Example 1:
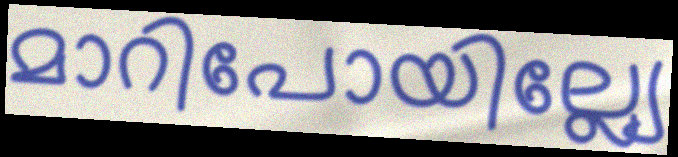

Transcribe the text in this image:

മാറിപോയില്ല്യേ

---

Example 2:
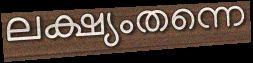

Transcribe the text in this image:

ലക്ഷ്യംതന്നെ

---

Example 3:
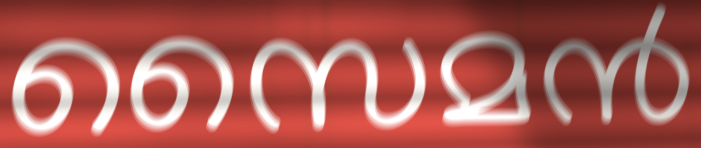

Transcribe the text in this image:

സൈമൻ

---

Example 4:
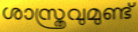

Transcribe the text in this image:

ശാസ്ത്രവുമുണ്ട്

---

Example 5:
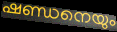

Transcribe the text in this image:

ഷണ്ഡനെയും